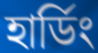
হার্ডিং